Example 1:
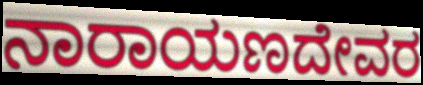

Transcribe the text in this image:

ನಾರಾಯಣದೇವರ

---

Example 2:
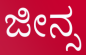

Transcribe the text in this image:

ಜೀನ್ಸ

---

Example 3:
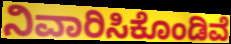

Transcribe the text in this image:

ನಿವಾರಿಸಿಕೊಂಡಿವೆ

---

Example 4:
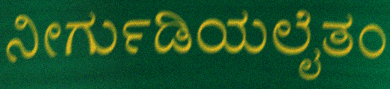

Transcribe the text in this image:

ನೀರ್ಗುಡಿಯಲೈತಂ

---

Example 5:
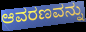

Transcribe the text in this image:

ಆವರಣವನ್ನು